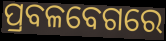
ପ୍ରବଳବେଗରେ